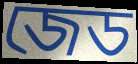
জেড